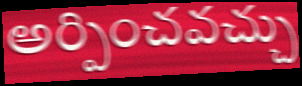
అర్పించవచ్చు